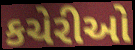
કચેરીઓ